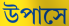
উপাসে